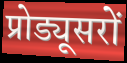
प्रोड्यूसरों